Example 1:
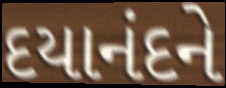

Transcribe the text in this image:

દયાનંદને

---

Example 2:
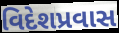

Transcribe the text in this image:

વિદેશપ્રવાસ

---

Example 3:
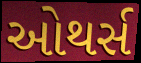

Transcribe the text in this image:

ઓથર્સ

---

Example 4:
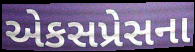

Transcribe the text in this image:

એકસપ્રેસના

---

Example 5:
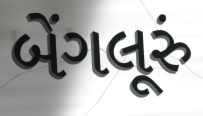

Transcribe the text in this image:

બેંગલૂરું